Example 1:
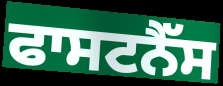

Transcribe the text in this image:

ਫਾਸਟਨੈੱਸ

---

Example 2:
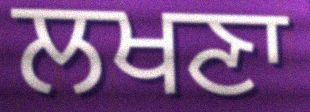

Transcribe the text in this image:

ਲਖਣਾ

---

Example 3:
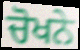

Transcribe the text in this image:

ਚੋਖਨੇ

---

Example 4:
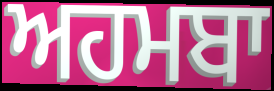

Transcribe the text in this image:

ਅਹਮਬਾ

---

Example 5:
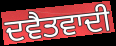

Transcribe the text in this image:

ਦਵੈਤਵਾਦੀ